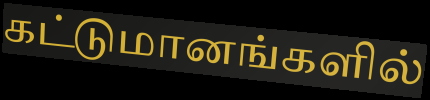
கட்டுமானங்களில்